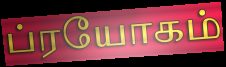
ப்ரயோகம்